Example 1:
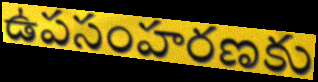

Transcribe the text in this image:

ఉపసంహరణకు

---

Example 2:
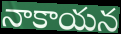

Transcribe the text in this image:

నాకాయన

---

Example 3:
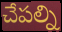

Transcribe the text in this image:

చేపల్ని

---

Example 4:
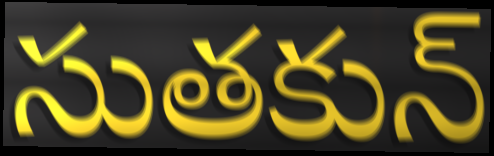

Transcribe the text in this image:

సుతకున్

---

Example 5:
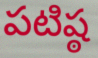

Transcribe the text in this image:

పటిష్ఠ